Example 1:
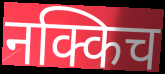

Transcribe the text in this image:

नक्किच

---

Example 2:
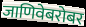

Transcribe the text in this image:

जाणिवेबरोबर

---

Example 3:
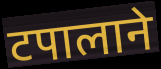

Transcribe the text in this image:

टपालाने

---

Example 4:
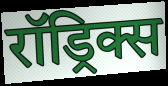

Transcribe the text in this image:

रॉड्रिक्स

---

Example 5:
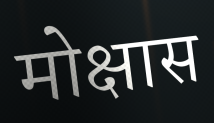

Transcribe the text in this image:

मोक्षास